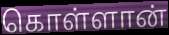
கொள்ளான்